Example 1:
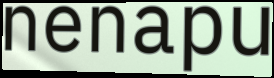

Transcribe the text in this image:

nenapu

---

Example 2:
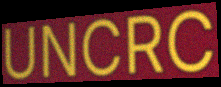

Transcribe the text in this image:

UNCRC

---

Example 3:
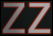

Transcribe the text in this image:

zz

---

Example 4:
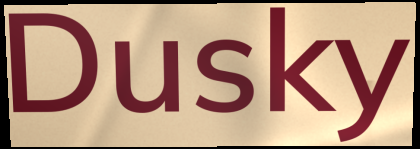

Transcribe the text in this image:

Dusky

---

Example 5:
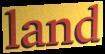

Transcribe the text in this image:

land